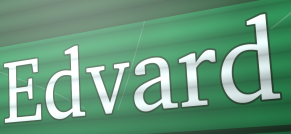
Edvard